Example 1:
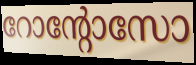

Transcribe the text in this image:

റോന്റോസോ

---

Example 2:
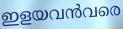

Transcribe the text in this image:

ഇളയവൻവരെ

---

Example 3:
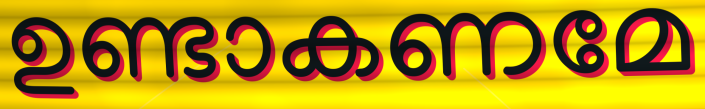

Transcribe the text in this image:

ഉണ്ടാകണമേ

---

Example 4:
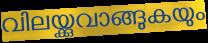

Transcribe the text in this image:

വിലയ്ക്കുവാങ്ങുകയും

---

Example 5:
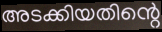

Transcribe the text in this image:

അടക്കിയതിന്റെ